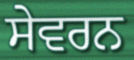
ਸੇਵਰਨ